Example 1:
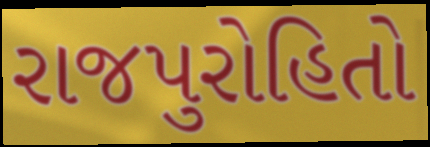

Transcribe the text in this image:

રાજપુરોહિતો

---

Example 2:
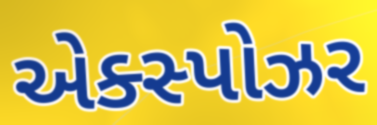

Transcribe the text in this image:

એક્સ્પોઝર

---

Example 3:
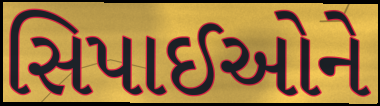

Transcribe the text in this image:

સિપાઈઓને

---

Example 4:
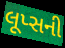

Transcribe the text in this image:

લૂપ્સની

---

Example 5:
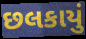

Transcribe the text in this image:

છલકાયું